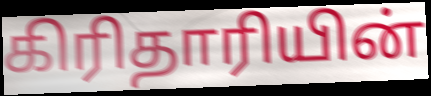
கிரிதாரியின்